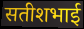
सतीशभाई